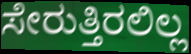
ಸೇರುತ್ತಿರಲಿಲ್ಲ